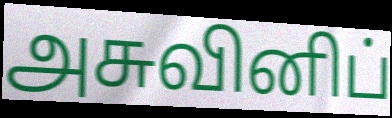
அசுவினிப்